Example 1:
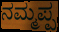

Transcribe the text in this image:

ನಮ್ಮಪ್ಪ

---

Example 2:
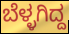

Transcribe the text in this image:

ಬೆಳ್ಳಗಿದ್ದ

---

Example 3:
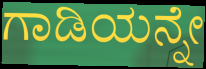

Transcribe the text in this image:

ಗಾಡಿಯನ್ನೇ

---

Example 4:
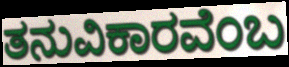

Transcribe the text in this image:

ತನುವಿಕಾರವೆಂಬ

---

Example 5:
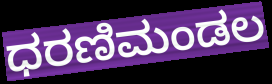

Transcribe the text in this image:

ಧರಣಿಮಂಡಲ